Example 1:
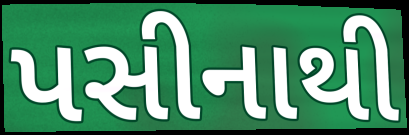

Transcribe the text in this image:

પસીનાથી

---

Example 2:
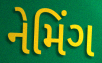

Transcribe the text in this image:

નેમિંગ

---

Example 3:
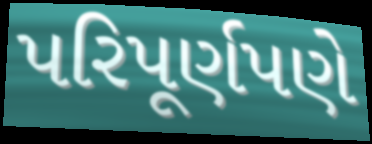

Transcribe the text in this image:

પરિપૂર્ણપણે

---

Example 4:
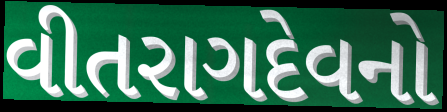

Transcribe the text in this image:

વીતરાગદેવનો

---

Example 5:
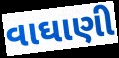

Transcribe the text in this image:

વાઘાણી